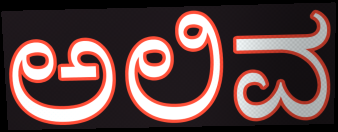
ಅಲಿವ